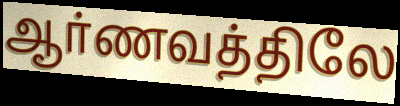
ஆர்ணவத்திலே